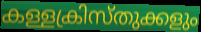
കള്ളക്രിസ്തുക്കളും